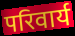
परिवार्य